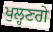
ਖੁਲ੍ਹਣਗੇ